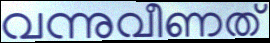
വന്നുവീണത്